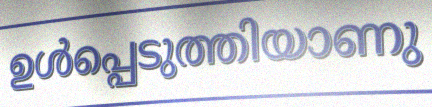
ഉൾപ്പെടുത്തിയാണു